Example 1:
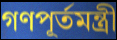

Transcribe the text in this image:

গণপূর্তমন্ত্রী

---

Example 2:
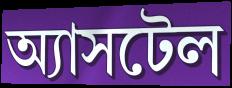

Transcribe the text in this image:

অ্যাসটেল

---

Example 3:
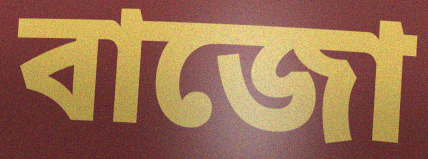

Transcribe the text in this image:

বাজো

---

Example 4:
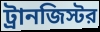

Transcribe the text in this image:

ট্রানজিস্টর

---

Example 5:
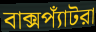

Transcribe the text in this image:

বাক্সপ্যাঁটরা